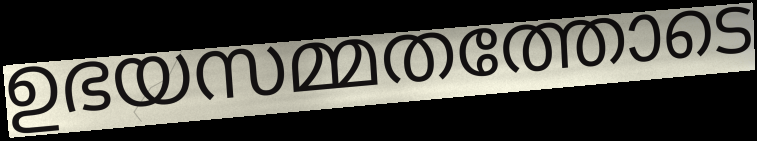
ഉഭയസമ്മതത്തോടെ